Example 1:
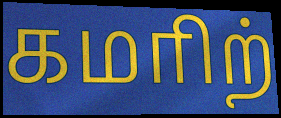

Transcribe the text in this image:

கமரிற்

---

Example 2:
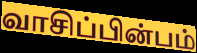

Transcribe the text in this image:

வாசிப்பின்பம்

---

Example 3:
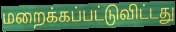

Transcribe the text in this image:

மறைக்கப்பட்டுவிட்டது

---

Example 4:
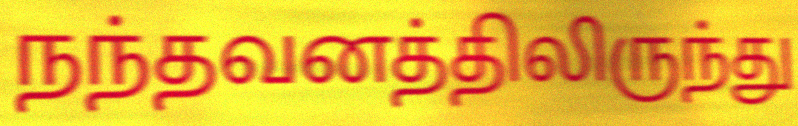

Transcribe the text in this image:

நந்தவனத்திலிருந்து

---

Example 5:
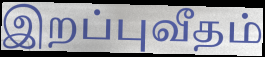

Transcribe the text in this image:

இறப்புவீதம்